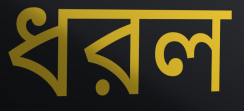
ধরল